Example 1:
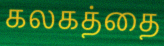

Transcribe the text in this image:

கலகத்தை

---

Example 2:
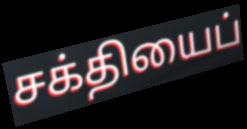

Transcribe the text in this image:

சக்தியைப்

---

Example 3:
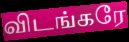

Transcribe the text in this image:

விடங்கரே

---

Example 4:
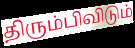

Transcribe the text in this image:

திரும்பிவிடும்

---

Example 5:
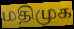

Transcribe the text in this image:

மதிமுக